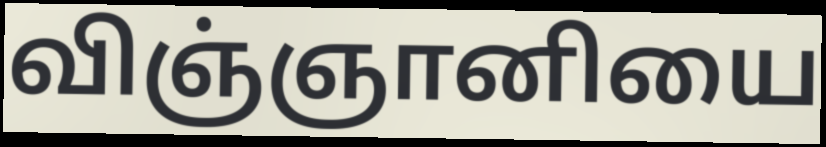
விஞ்ஞானியை